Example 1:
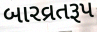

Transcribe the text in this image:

બારવ્રતરૂપ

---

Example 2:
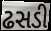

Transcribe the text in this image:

ઢસડી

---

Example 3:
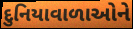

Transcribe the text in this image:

દુનિયાવાળાઓને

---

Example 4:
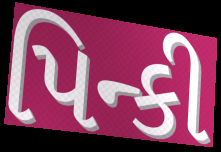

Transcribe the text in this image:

પિન્કી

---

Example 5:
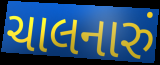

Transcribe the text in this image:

ચાલનારું